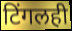
टिंगलही